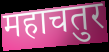
महाचतुर